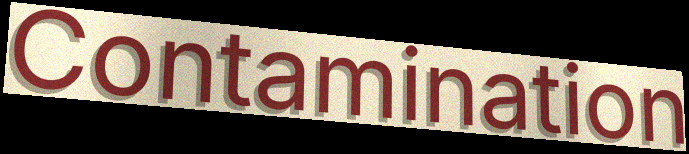
Contamination